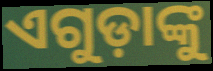
ଏଗୁଡ଼ାଙ୍କୁ